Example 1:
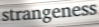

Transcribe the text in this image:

strangeness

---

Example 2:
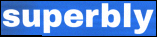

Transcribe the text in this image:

superbly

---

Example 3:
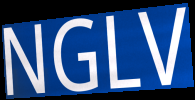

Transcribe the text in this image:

NGLV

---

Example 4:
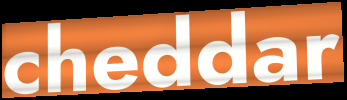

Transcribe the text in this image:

cheddar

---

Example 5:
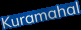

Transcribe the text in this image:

Kuramahal